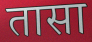
तासा